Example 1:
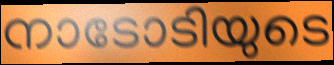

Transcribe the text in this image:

നാടോടിയുടെ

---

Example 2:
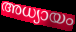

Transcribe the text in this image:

അധ്യായം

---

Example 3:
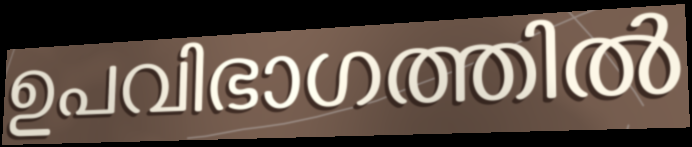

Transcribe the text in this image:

ഉപവിഭാഗത്തിൽ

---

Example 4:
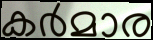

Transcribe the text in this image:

കർമാര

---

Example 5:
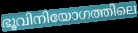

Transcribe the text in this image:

ഭൂവിനിയോഗത്തിലെ